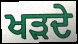
ਖੜਦੇ